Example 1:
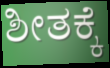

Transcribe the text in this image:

ಶೀತಕ್ಕೆ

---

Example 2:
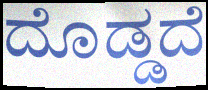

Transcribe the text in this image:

ದೊಡ್ಡದೆ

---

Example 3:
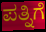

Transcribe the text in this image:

ಪತ್ನಿಗೆ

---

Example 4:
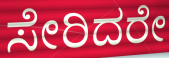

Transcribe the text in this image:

ಸೇರಿದರೇ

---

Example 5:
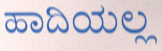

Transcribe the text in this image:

ಹಾದಿಯಲ್ಲ